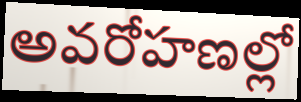
అవరోహణల్లో